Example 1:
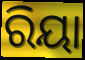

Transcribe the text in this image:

ରିୟା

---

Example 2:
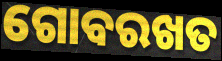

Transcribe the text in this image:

ଗୋବରଖତ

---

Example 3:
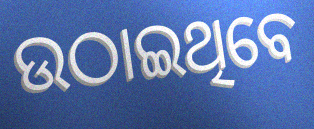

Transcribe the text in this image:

ଉଠାଇଥିବେ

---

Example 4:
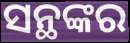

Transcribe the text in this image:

ସନ୍ଥଙ୍କର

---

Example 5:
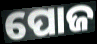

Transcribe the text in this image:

ପୋଜ